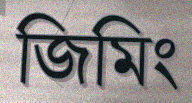
জিমিং